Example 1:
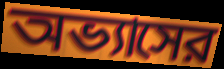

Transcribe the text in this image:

অভ্যাসের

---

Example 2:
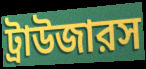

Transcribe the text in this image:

ট্রাউজারস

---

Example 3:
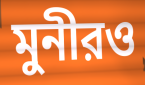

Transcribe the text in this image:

মুনীরও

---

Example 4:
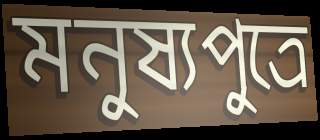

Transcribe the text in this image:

মনুষ্যপুত্রে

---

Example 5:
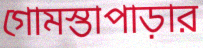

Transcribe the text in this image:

গোমস্তাপাড়ার